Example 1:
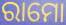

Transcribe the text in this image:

ରାମୋ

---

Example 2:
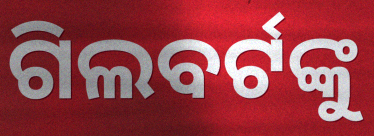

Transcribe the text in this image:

ଗିଲବର୍ଟଙ୍କୁ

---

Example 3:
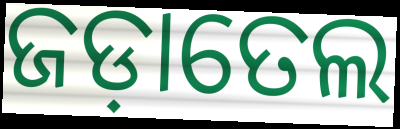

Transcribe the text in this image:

ଜଡ଼ାତେଲ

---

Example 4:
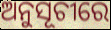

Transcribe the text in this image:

ଅନୁସୂଚୀରେ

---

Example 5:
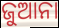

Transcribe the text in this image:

ଜୁଆନା